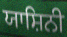
ਯਾਸ਼ਿਨੀ